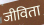
जीविता